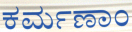
ಕರ್ಮಣಾಂ